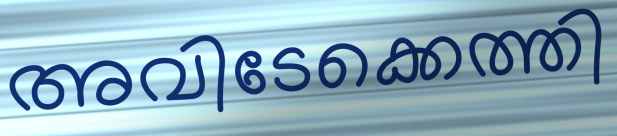
അവിടേക്കെത്തി